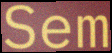
Sem